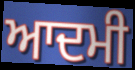
ਆਦਮੀ